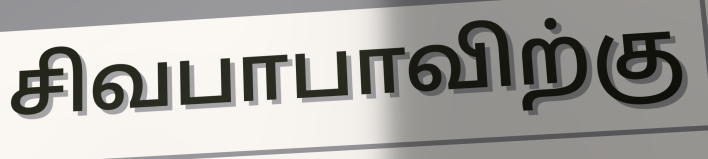
சிவபாபாவிற்கு